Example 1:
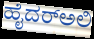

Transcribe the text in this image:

ಹೈದರ್‌ಅಲಿ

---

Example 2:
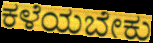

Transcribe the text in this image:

ಕಳೆಯಬೇಕು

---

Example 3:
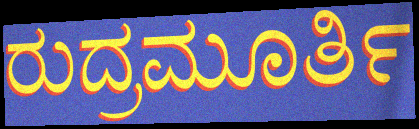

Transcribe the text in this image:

ರುದ್ರಮೂರ್ತಿ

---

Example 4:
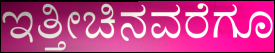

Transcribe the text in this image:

ಇತ್ತೀಚಿನವರೆಗೂ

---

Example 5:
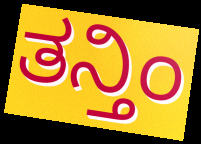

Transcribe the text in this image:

ತನ್ತಿಂ